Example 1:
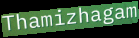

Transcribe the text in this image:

Thamizhagam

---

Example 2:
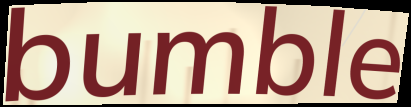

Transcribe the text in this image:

bumble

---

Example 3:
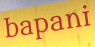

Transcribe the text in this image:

bapani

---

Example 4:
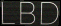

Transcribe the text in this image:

LBD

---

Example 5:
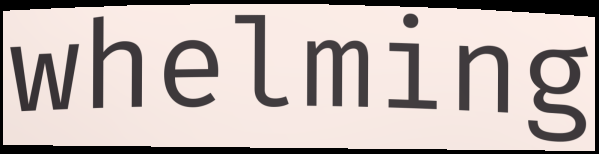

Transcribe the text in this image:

whelming